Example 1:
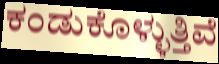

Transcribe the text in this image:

ಕಂಡುಕೊಳ್ಳುತ್ತಿವೆ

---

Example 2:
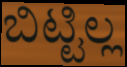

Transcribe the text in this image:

ಬಿಟ್ಟಿಲ್ಲ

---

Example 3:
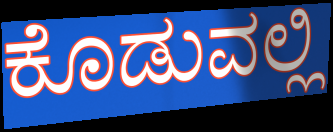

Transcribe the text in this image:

ಕೊಡುವಲ್ಲಿ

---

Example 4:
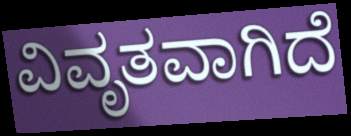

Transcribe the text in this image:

ವಿವೃತವಾಗಿದೆ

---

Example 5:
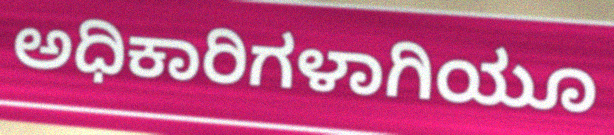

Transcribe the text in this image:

ಅಧಿಕಾರಿಗಳಾಗಿಯೂ